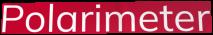
Polarimeter